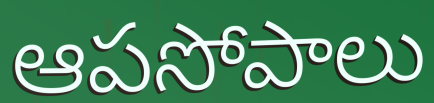
ఆపసోపాలు